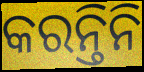
କରନ୍ତିନି